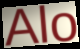
Alo